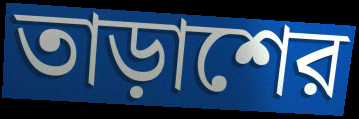
তাড়াশের